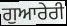
ਗੁਆਰੇਰੀ